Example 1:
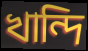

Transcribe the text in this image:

খান্দি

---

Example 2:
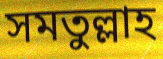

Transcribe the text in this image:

সমতুল্লাহ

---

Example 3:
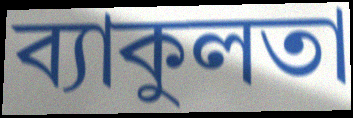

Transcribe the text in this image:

ব্যাকুলতা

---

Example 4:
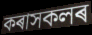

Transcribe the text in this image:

কৰাসকলৰ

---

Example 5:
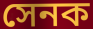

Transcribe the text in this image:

সেনক